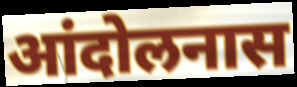
आंदोलनास